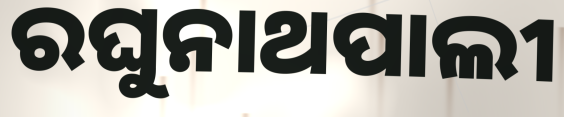
ରଘୁନାଥପାଲୀ